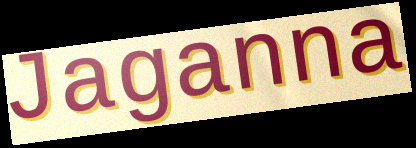
Jaganna